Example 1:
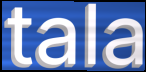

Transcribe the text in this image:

tala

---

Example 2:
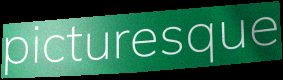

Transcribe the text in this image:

picturesque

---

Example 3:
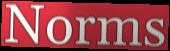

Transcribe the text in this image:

Norms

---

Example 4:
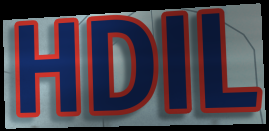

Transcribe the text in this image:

HDIL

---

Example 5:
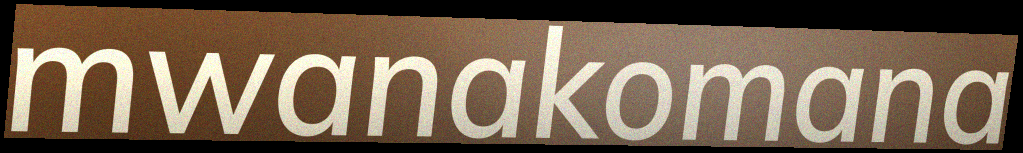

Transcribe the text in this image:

mwanakomana